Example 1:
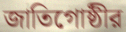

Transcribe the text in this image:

জাতিগোষ্ঠীর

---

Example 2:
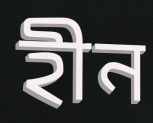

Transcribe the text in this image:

হীন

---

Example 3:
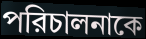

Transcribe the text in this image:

পরিচালনাকে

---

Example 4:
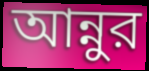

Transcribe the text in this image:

আন্নুর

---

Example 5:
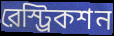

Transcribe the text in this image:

রেস্ট্রিকশন